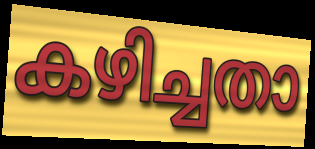
കഴിച്ചതാ